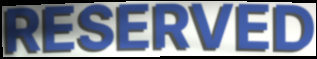
RESERVED